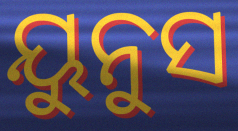
ୟୁନୁସ